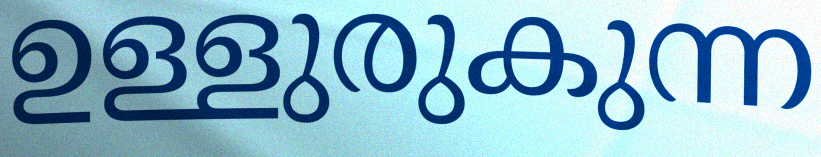
ഉള്ളുരുകുന്ന